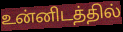
உன்னிடத்தில்